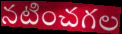
నటించగల